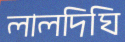
লালদিঘি